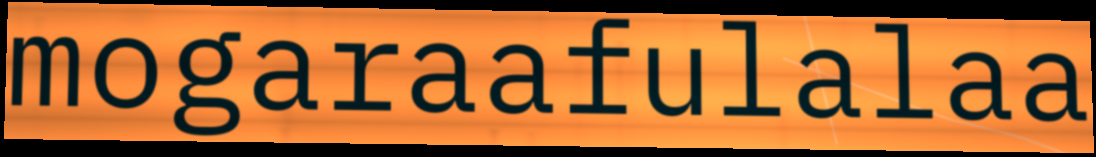
mogaraafulalaa